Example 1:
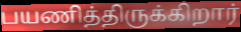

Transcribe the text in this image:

பயணித்திருக்கிறார்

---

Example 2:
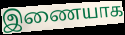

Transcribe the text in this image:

இணையாக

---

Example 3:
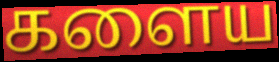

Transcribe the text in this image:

களைய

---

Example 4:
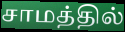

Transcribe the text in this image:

சாமத்தில்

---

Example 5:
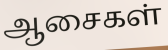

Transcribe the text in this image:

ஆசைகள்